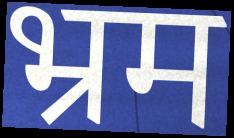
भ्रम